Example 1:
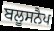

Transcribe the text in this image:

ਬਲੂਸਨੈਪ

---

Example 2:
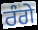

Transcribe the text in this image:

ਰੰਗੇ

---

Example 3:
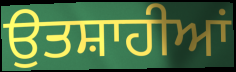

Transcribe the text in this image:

ਉਤਸ਼ਾਹੀਆਂ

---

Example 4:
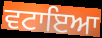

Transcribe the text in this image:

ਵਟਾਇਆ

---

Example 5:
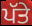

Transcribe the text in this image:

ਪੱਤੇ